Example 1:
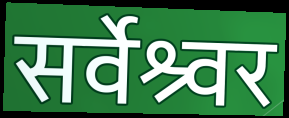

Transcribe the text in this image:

सर्वेश्र्वर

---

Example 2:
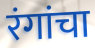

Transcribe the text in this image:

रंगांचा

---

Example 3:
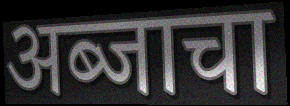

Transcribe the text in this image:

अब्जाचा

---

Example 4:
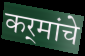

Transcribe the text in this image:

कर्मांचे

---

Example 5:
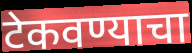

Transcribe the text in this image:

टेकवण्याचा